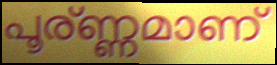
പൂര്ണ്ണമാണ്